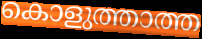
കൊളുത്താത്ത